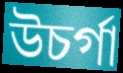
উচৰ্গা